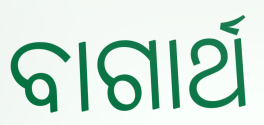
ବାଗାର୍ଥ